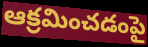
ఆక్రమించడంపై